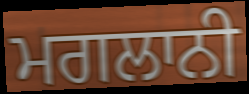
ਮਗਲਾਨੀ